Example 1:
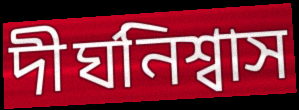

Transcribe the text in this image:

দীর্ঘনিশ্বাস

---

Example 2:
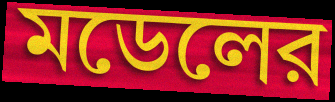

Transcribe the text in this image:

মডেলের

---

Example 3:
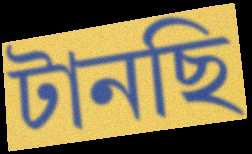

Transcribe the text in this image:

টানছি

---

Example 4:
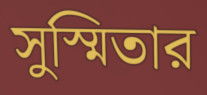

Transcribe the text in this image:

সুস্মিতার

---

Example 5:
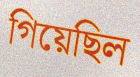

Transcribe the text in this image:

গিয়েছিল